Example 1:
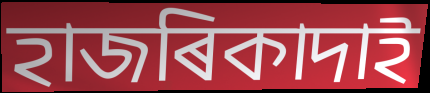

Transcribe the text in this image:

হাজৰিকাদাই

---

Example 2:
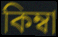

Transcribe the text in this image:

কিম্বা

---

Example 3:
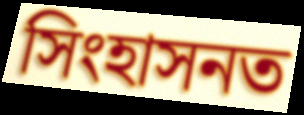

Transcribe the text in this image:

সিংহাসনত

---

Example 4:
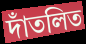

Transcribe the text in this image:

দাঁতলিত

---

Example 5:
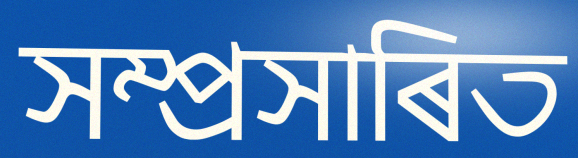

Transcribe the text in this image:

সম্প্ৰসাৰিত